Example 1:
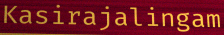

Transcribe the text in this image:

Kasirajalingam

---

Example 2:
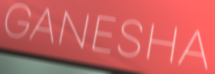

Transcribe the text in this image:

GANESHA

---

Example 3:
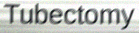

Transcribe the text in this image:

Tubectomy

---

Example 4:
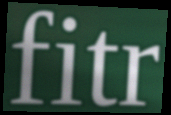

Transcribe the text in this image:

fitr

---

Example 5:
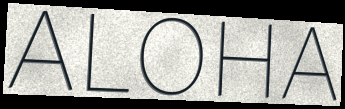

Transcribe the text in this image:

ALOHA